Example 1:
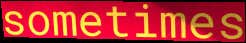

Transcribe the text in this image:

sometimes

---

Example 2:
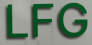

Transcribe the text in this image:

LFG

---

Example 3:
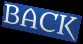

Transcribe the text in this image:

BACK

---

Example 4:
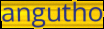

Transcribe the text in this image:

angutho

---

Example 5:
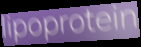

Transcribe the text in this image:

lipoprotein